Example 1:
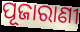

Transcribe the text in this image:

ପୂଜାରାଣୀ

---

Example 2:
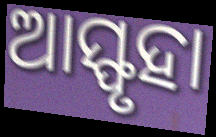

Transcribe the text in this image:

ଆସ୍ଫୃହା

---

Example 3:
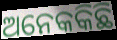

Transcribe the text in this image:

ଅନେକକିଛି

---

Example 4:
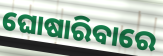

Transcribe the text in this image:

ଘୋଷାରିବାରେ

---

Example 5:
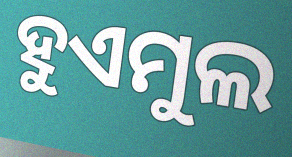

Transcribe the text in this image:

ହୁଏମୁଲ